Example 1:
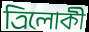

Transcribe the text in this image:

ত্রিলোকী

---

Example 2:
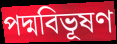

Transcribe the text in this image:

পদ্মবিভূষণ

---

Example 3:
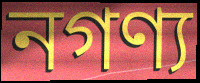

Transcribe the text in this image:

নগণ্য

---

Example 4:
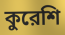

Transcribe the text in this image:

কুরেশি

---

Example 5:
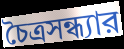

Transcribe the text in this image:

চৈত্রসন্ধ্যার